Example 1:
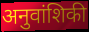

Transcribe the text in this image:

अनुवांशिकी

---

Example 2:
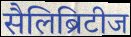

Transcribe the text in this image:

सैलिब्रिटीज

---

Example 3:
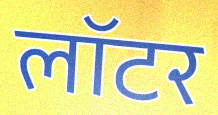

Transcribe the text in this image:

लॉटर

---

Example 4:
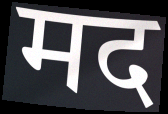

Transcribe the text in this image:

मद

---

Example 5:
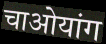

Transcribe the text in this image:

चाओयांग